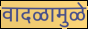
वादळामुळे